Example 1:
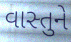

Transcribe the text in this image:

વાસ્તુને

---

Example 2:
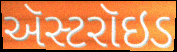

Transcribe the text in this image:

ઍસ્ટરૉઇડ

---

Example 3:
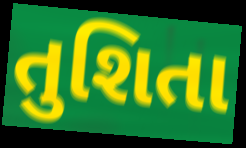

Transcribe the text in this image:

તુશિતા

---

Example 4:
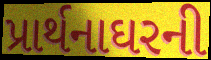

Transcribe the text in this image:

પ્રાર્થનાઘરની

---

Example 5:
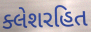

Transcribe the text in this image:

ક્લેશરહિત